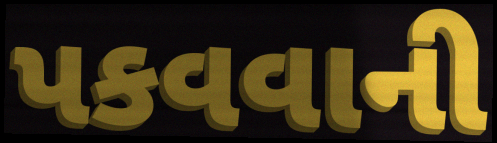
પકવવાની